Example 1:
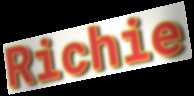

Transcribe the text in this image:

Richie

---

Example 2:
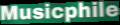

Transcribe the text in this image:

Musicphile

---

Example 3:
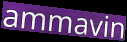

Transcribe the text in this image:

ammavin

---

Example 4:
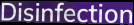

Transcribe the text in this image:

Disinfection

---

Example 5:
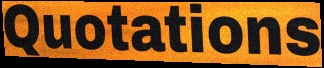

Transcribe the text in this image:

Quotations